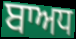
ਬਾਅਧ